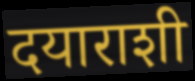
दयाराशी